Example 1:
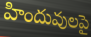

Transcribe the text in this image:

హిందువులపై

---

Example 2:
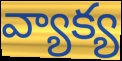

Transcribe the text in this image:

వ్యాక్య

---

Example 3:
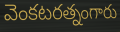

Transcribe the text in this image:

వెంకటరత్నంగారు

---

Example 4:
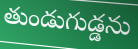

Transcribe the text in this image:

తుండుగుడ్డను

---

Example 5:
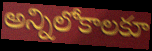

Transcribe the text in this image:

అన్నిలోకాలకూ